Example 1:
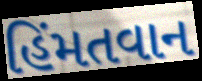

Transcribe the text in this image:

હિંમતવાન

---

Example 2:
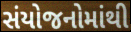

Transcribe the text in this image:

સંયોજનોમાંથી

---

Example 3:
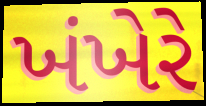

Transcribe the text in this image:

ખંખેરે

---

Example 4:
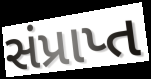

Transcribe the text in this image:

સંપ્રાપ્ત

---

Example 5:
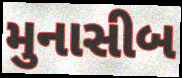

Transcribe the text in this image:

મુનાસીબ